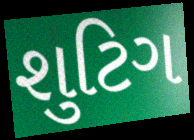
શુટિગ